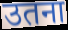
उतना